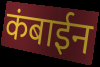
कंबाईन